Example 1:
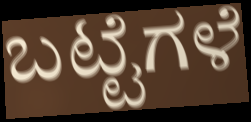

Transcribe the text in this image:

ಬಟ್ಟೆಗಳೆ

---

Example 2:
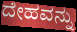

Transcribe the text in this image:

ದೇಹವನ್ನು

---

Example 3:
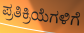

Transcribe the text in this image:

ಪ್ರತಿಕ್ರಿಯೆಗಳಿಗೆ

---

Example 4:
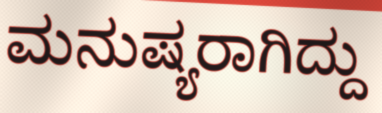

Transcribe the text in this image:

ಮನುಷ್ಯರಾಗಿದ್ದು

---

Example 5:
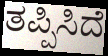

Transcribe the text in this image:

ತಪ್ಪಿಸಿದೆ